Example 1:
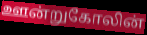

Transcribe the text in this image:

ஊன்றுகோலின்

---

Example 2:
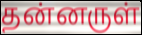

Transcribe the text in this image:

தன்னருள்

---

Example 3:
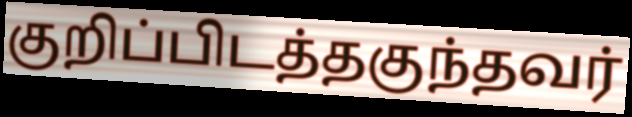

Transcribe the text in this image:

குறிப்பிடத்தகுந்தவர்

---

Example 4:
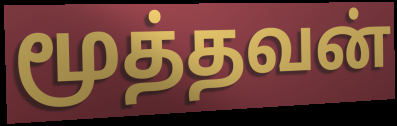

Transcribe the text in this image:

மூத்தவன்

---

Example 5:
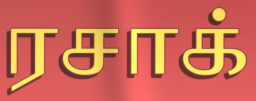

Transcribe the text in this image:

ரசாக்